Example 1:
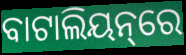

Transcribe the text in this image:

ବାଟାଲିୟନ୍‌ରେ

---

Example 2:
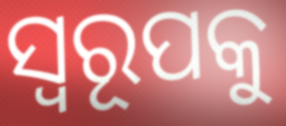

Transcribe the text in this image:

ସ୍ବରୂପକୁ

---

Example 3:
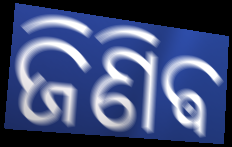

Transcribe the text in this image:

ଜିଣିଵ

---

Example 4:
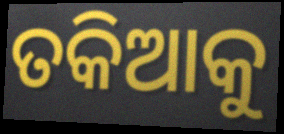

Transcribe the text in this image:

ତକିଆକୁ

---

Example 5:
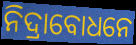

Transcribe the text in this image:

ନିଦ୍ରାବୋଧନେ